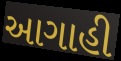
આગાહી